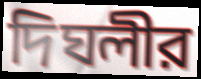
দিঘলীর